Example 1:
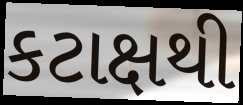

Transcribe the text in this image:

કટાક્ષથી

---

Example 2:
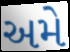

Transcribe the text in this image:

અમે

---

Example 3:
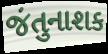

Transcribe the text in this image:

જંતુનાશક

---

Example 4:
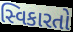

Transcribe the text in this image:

સ્વિકારતો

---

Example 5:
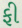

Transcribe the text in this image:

ફી